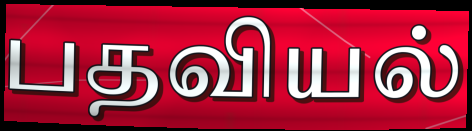
பதவியல்